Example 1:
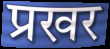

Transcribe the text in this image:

प्रखर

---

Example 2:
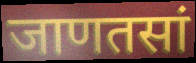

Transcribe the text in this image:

जाणतसां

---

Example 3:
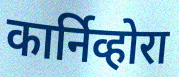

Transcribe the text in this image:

कार्निव्होरा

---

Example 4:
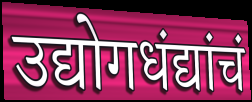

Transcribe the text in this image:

उद्योगधंद्यांचं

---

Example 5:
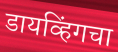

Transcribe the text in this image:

डायव्हिंगचा